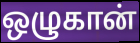
ஒழுகான்